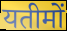
यतीमों